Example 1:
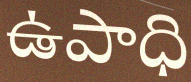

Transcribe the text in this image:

ఉపాధి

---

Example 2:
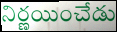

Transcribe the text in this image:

నిర్ణయించేడు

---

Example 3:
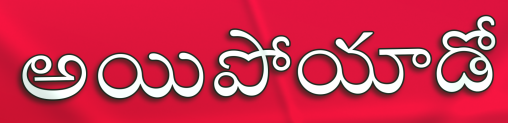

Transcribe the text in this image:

అయిపోయాడో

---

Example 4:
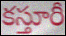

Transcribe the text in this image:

కస్తూరీ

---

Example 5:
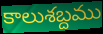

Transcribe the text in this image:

కాలుశబ్దము